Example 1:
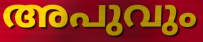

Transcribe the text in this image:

അപുവും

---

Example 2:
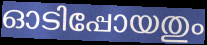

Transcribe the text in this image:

ഓടിപ്പോയതും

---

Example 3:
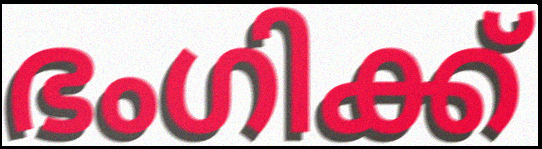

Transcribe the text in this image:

ഭംഗിക്ക്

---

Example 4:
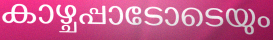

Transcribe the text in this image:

കാഴ്ചപ്പാടോടെയും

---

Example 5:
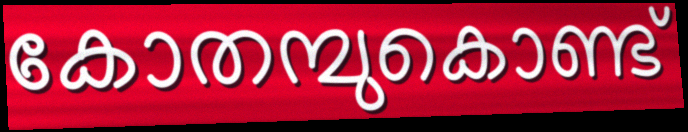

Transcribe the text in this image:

കോതമ്പുകൊണ്ട്